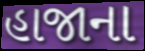
હાજાના